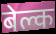
बेल्क